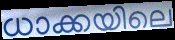
ധാക്കയിലെ